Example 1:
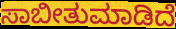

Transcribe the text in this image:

ಸಾಬೀತುಮಾಡಿದೆ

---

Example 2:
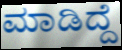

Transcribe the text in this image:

ಮಾಡಿದ್ದೆ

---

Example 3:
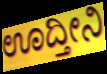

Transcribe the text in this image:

ಊದ್ತೀನಿ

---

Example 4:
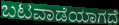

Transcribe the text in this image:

ಬಟವಾಡೆಯಾಗದೆ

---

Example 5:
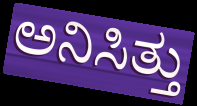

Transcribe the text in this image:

ಅನಿಸಿತ್ತು